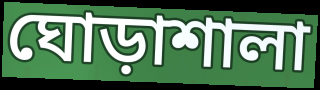
ঘোড়াশালা